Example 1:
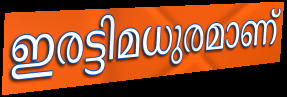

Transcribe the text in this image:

ഇരട്ടിമധുരമാണ്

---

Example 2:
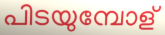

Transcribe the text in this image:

പിടയുമ്പോള്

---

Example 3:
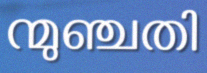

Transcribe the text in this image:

ന്മുഞ്ചതി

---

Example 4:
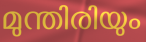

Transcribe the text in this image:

മുന്തിരിയും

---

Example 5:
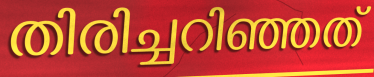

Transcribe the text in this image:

തിരിച്ചറിഞ്ഞത്